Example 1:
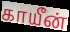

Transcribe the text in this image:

காயீன்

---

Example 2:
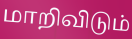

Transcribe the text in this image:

மாறிவிடும்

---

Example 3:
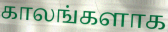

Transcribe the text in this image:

காலங்களாக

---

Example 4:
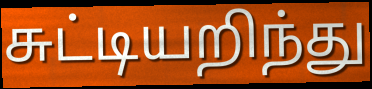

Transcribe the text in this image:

சுட்டியறிந்து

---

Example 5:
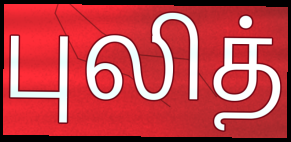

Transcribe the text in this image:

புலித்